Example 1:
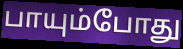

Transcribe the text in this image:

பாயும்போது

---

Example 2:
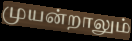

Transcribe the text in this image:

முயன்றாலும்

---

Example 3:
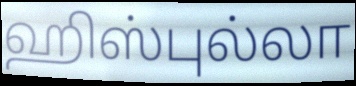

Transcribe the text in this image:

ஹிஸ்புல்லா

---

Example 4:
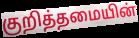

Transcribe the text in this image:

குறித்தமையின்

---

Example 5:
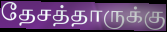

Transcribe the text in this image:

தேசத்தாருக்கு